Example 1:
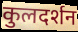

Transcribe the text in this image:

कुलदर्शन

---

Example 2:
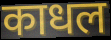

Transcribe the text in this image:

काधल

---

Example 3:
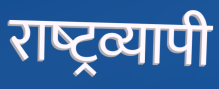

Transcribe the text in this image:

राष्‍ट्रव्‍यापी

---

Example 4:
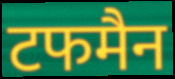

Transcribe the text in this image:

टफमैन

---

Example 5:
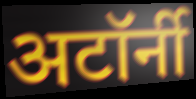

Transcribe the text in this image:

अटॉर्नी